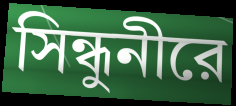
সিন্ধুনীরে